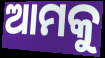
ଆମକୁ